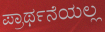
ಪ್ರಾರ್ಥನೆಯಲ್ಲ